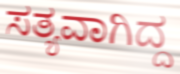
ಸತ್ಯವಾಗಿದ್ದ